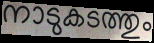
നാടുകടത്തും